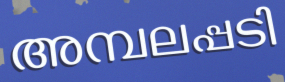
അമ്പലപ്പടി